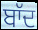
ਬਾੱਦ